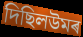
দিছিলউমৰ